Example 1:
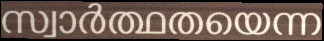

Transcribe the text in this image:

സ്വാർത്ഥതയെന്ന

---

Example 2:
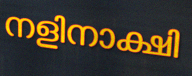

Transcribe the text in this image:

നളിനാക്ഷി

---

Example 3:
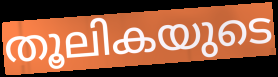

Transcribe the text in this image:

തൂലികയുടെ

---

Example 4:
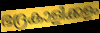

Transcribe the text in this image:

ഭദ്രകാളിക്കളം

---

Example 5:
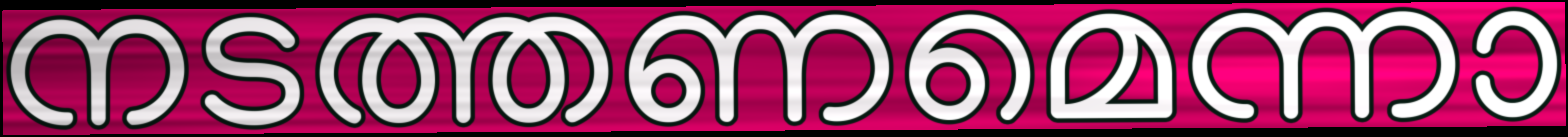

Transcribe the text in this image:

നടത്തണമെന്നാ